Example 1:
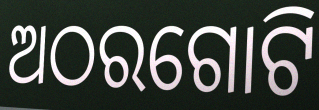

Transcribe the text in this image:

ଅଠରଗୋଟି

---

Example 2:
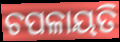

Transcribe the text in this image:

ଚପଳାୟତି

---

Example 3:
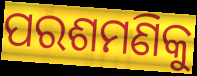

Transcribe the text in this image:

ପରଶମଣିକୁ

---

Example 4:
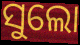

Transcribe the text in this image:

ସୁଲୋ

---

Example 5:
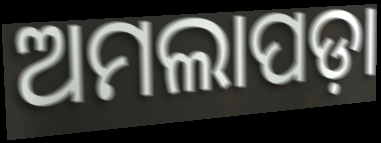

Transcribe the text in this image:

ଅମଲାପଡ଼ା